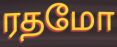
ரதமோ